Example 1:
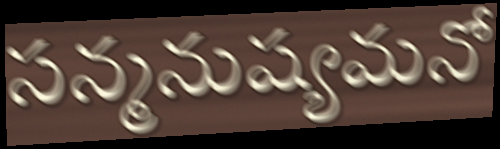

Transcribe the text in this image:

సన్మనుష్యమనో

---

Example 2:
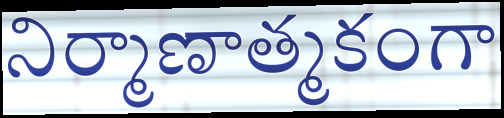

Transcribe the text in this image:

నిర్మాణాత్మకంగా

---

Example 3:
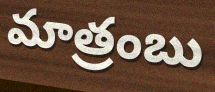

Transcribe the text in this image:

మాత్రంబు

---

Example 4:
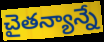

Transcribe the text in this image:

చైతన్యాన్నే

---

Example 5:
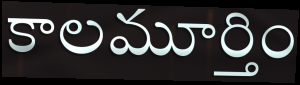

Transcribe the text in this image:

కాలమూర్తిం